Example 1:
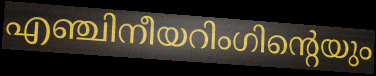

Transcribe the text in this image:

എഞ്ചിനീയറിംഗിന്റെയും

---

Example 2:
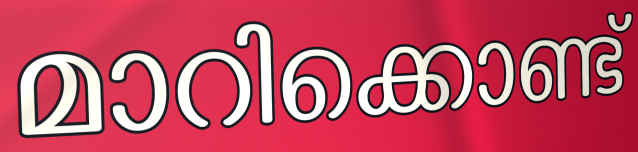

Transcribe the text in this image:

മാറിക്കൊണ്ട്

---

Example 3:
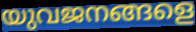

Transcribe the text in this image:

യുവജനങ്ങളെ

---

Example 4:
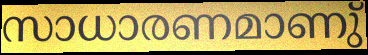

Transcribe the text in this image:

സാധാരണമാണു്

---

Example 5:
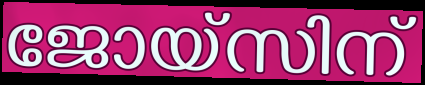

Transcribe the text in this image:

ജോയ്സിന്